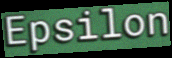
Epsilon